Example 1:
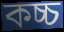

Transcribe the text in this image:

কচ্চ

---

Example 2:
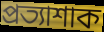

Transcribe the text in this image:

প্ৰত্যাশাক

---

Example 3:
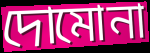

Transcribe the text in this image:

দোমোনা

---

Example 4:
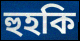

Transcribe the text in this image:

হুহকি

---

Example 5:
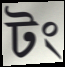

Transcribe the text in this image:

টং